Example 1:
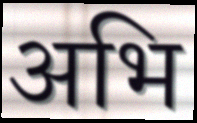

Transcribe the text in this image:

अभि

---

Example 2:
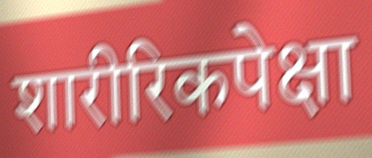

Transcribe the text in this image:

शारीरिकपेक्षा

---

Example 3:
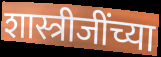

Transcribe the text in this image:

शास्त्रीजींच्या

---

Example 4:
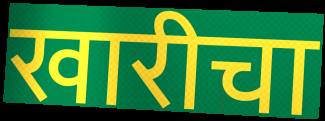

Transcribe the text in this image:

खारीचा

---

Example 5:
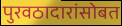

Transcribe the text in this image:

पुरवठादारांसोबत